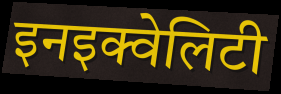
इनइक्वेलिटी